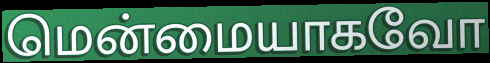
மென்மையாகவோ